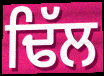
ਢਿੱਲ